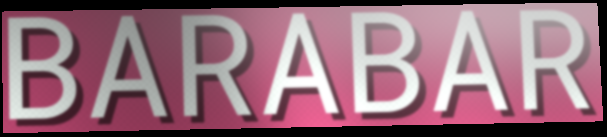
BARABAR